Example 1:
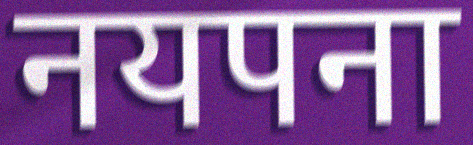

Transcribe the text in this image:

नयपना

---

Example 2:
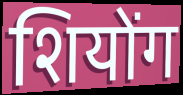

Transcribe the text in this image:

शियोंग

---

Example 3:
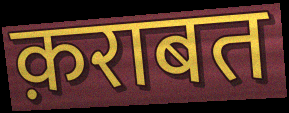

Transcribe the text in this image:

क़राबत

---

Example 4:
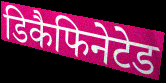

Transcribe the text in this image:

डिकैफिनेटेड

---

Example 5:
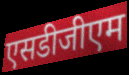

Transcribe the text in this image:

एसडीजीएम